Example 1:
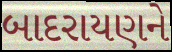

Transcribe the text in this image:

બાદરાયણને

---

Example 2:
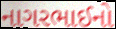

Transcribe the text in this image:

નાગરભાઈનો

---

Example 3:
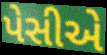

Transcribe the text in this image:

પેસીએ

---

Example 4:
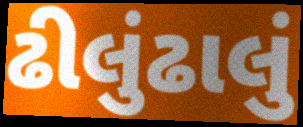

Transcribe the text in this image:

ઢીલુંઢાલું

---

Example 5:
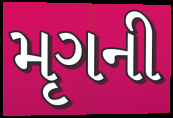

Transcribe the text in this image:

મૃગની